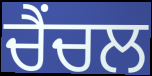
ਚੈਂਚਲ